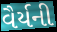
વૈર્યની